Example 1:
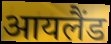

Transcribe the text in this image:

आयलैंड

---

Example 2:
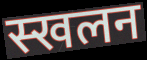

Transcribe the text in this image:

स्खलन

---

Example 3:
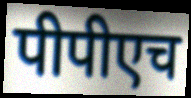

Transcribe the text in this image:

पीपीएच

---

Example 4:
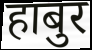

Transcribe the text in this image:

हाबुर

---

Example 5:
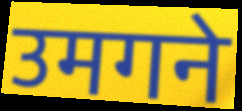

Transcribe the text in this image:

उमगने